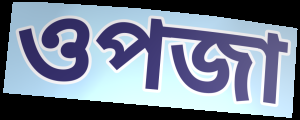
ওপজা